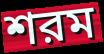
শরম